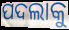
ପଦଲାକୁ